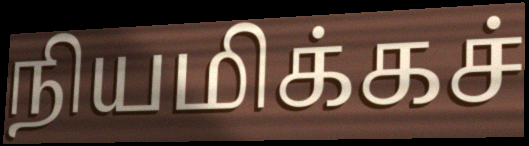
நியமிக்கச்